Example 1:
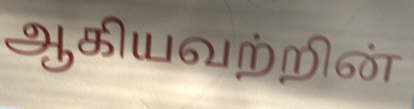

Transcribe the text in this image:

ஆகியவற்றின்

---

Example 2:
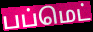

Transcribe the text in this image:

பப்மெட்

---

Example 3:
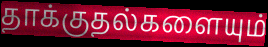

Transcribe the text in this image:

தாக்குதல்களையும்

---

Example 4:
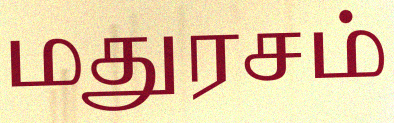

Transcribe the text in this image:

மதுரசம்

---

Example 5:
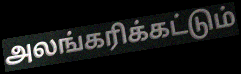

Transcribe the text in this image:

அலங்கரிக்கட்டும்